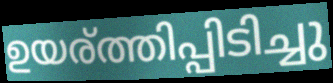
ഉയര്ത്തിപ്പിടിച്ചു